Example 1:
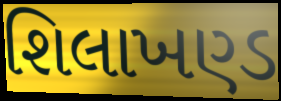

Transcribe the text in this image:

શિલાખણ્ડ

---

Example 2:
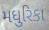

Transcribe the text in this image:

મધુરિકા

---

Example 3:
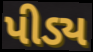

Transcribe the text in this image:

પીડ્ય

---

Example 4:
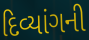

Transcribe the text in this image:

દિવ્યાંગની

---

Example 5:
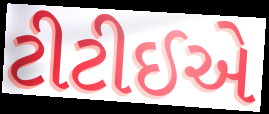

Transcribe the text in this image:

ટીટીઈએ